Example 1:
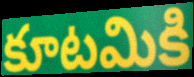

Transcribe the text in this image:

కూటమికి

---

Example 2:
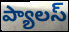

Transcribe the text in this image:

ప్యాలస్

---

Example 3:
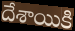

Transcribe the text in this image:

దేశాయికి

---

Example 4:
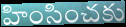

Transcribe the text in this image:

హింసించకు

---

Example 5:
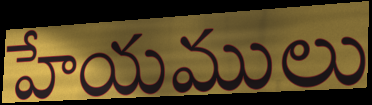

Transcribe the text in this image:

హేయములు